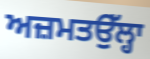
ਅਜ਼ਮਤਉੱਲ੍ਹਾ